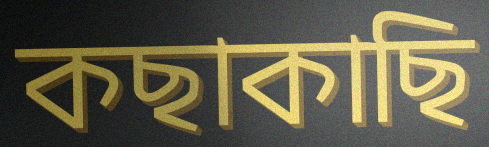
কছাকাছি